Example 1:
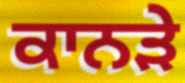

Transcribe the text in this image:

ਕਾਨੜੇ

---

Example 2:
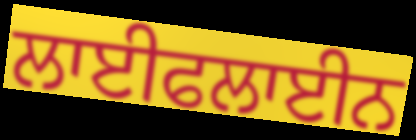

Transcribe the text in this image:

ਲਾਈਫਲਾਈਨ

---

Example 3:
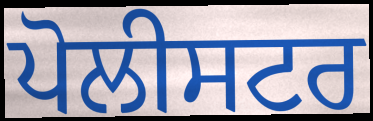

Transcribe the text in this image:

ਪੋਲੀਸਟਰ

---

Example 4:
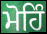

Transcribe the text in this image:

ਮੋਹਿੰ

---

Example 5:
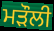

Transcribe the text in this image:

ਮੜੌਲੀ